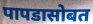
पापडासोबत